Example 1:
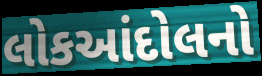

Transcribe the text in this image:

લોકઆંદોલનો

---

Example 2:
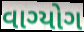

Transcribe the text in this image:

વાગ્યોગ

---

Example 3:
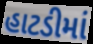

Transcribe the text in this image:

હાટડીમાં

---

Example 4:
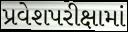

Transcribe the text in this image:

પ્રવેશપરીક્ષામાં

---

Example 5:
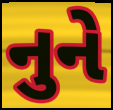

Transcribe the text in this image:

નુને